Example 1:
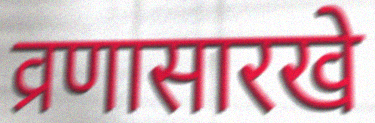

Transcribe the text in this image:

व्रणासारखे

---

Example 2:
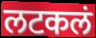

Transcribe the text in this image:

लटकलं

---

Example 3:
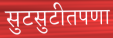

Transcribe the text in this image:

सुटसुटीतपणा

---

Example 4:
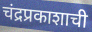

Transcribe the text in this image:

चंद्रप्रकाशाची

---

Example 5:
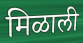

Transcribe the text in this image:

मिळाली